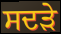
ਸਦੜੇ